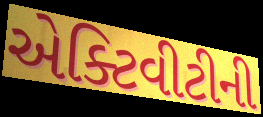
એક્ટિવીટીની